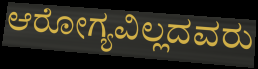
ಆರೋಗ್ಯವಿಲ್ಲದವರು